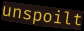
unspoilt